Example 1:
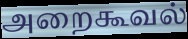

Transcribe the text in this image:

அறைகூவல்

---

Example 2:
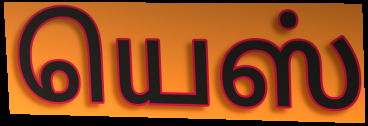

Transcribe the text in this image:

யெஸ்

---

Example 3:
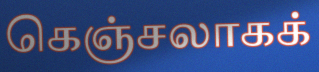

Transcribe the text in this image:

கெஞ்சலாகக்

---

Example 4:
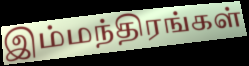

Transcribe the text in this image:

இம்மந்திரங்கள்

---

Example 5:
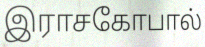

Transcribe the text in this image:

இராசகோபால்